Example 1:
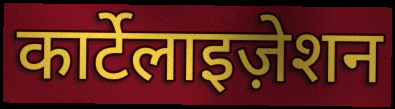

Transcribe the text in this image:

कार्टेलाइज़ेशन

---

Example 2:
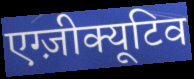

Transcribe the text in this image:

एग्ज़ीक्यूटिव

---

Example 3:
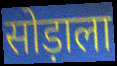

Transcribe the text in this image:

सोड़ाला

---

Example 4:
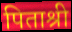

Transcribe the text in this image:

पिताश्री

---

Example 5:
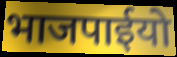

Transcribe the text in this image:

भाजपाईयो